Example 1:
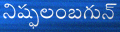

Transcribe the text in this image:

నిష్ఫలంబగున్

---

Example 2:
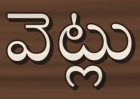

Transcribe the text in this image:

వెట్లు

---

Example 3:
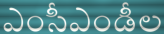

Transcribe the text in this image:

ఎంసీఎండీల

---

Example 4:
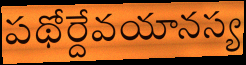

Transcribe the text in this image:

పథోర్దేవయానస్య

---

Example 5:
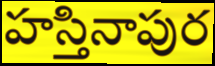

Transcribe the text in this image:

హస్తినాపుర